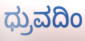
ಧ್ರುವದಿಂ